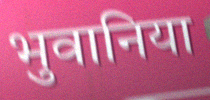
भुवानिया